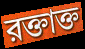
রক্তাক্ত